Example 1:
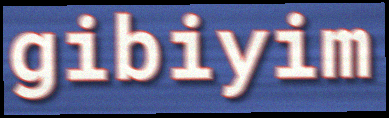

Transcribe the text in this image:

gibiyim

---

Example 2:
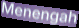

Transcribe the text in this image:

Menengah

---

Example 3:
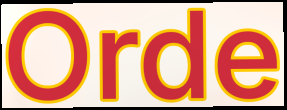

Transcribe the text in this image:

Orde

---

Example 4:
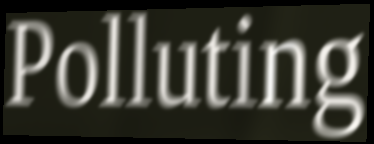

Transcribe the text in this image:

Polluting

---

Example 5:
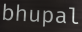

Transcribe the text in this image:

bhupal